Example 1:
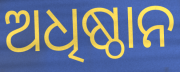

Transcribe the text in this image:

ଅଧିଷ୍ଠାନ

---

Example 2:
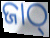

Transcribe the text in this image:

ଜାଠ୍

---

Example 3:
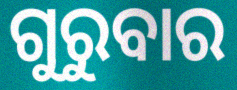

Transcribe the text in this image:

ଗୁରୁବାର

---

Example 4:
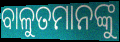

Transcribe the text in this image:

ବାଳୁତମାନଙ୍କୁ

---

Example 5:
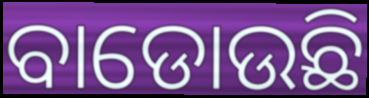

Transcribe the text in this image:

ବାଡୋଉଛି